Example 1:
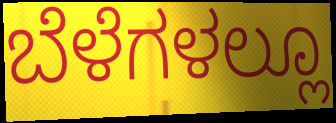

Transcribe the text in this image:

ಬೆಳೆಗಳಲ್ಲೂ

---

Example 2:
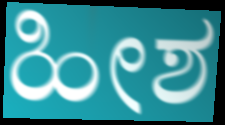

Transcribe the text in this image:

ಹೀಶ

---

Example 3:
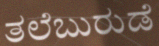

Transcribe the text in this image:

ತಲೆಬುರುಡೆ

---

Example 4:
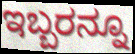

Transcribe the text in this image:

ಇಬ್ಬರನ್ನೂ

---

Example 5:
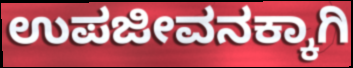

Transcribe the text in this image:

ಉಪಜೀವನಕ್ಕಾಗಿ